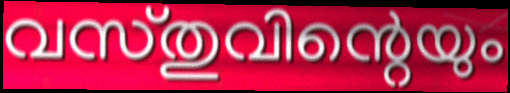
വസ്തുവിന്റെയും